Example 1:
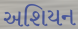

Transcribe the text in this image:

અશિયન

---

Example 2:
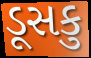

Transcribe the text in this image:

ડૂસકુ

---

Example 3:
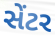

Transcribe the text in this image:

સેંટર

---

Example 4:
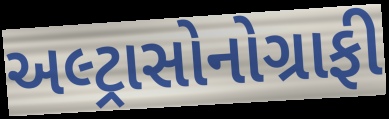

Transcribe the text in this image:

અલ્ટ્રાસોનોગ્રાફી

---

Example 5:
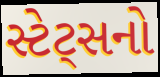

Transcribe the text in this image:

સ્ટેટ્સનો